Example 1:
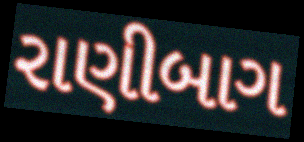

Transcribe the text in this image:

રાણીબાગ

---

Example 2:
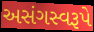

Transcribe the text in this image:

અસંગસ્વરૂપે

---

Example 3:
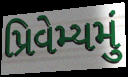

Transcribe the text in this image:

પ્રિવેમ્યમું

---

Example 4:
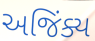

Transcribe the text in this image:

અજિંક્ય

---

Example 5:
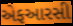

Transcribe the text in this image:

એફઆરસી